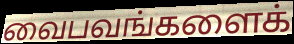
வைபவங்களைக்